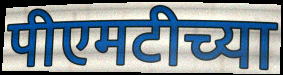
पीएमटीच्या